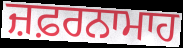
ਜ਼ਫ਼ਰਨਾਮਾਹ